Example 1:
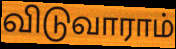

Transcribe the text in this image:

விடுவாராம்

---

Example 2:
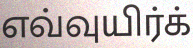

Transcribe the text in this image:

எவ்வுயிர்க்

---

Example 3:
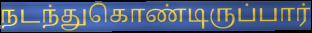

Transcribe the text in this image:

நடந்துகொண்டிருப்பார்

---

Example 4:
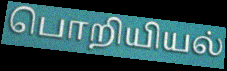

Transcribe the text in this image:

பொறியியல்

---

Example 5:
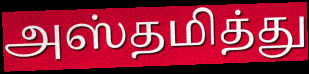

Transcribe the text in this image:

அஸ்தமித்து